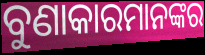
ବୁଣାକାରମାନଙ୍କର